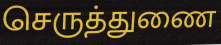
செருத்துணை